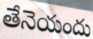
తేనెయందు